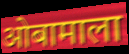
ओबामाला